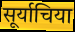
सूर्याचिया